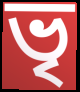
ভৃ